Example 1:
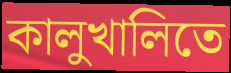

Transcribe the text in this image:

কালুখালিতে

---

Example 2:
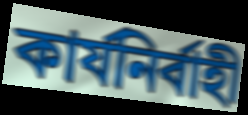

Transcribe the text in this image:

কার্যনির্বাহী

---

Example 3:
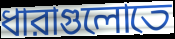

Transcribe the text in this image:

ধারাগুলোতে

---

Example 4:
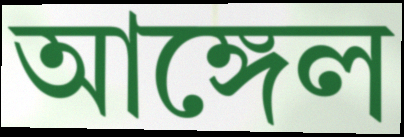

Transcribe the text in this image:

আঙ্গেল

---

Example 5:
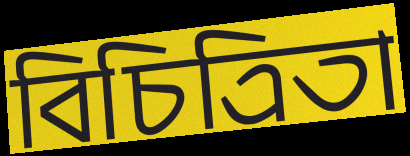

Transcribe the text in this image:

বিচিত্রিতা